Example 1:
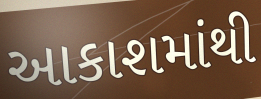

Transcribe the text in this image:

આકાશમાંથી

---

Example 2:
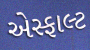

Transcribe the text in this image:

એસ્ફાલ્ટ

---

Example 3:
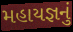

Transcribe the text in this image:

મહાયજ્ઞનું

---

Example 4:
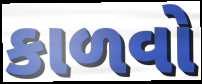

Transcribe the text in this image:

કાળવો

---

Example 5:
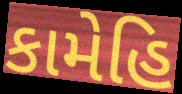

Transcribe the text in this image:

કામેહિ